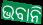
ଭବାନି